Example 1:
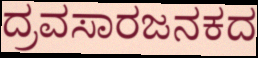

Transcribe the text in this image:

ದ್ರವಸಾರಜನಕದ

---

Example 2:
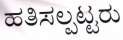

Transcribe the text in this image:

ಹತಿಸಲ್ಪಟ್ಟರು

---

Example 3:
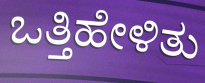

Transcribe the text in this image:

ಒತ್ತಿಹೇಳಿತು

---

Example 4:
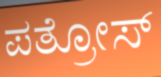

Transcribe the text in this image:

ಪತ್ರೋಸ್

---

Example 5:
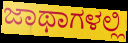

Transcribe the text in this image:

ಜಾಥಾಗಳಲ್ಲಿ